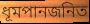
ধূমপানজনিত